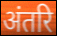
अंतरि